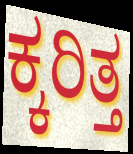
ಕ್ಕರಿತ್ತ